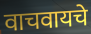
वाचवायचे